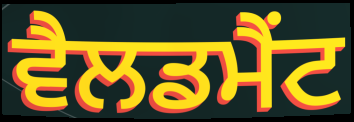
ਵੈਲਡਮੈਂਟ